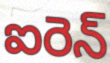
ఐరెన్